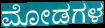
ಮೋಡಗಳ